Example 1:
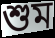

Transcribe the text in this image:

শুম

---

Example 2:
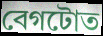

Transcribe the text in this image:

বেগটোত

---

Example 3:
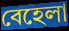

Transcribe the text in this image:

বেহেলা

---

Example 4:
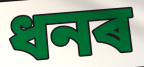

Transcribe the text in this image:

ধনৰ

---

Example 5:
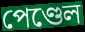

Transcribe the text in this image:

পেণ্ডেল